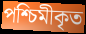
পশ্চিমীকৃত